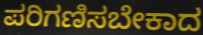
ಪರಿಗಣಿಸಬೇಕಾದ